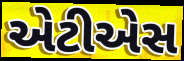
એટીએસ